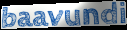
baavundi